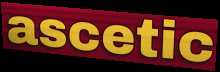
ascetic